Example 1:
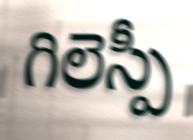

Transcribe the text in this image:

గిలెస్పీ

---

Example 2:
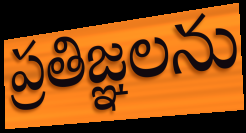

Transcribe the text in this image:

ప్రతిజ్ఞలను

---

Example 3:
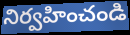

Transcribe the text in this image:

నిర్వహించండి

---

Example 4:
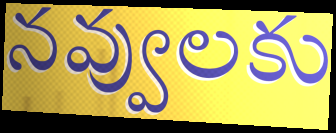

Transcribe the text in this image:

నవ్వులకు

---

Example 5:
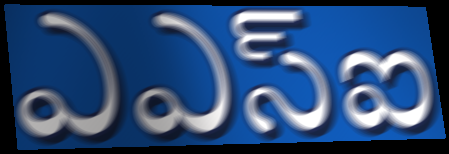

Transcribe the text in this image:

ఎఎస్ఐ